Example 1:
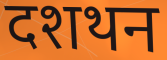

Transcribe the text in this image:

दशथन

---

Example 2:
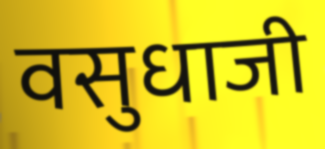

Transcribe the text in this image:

वसुधाजी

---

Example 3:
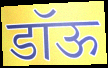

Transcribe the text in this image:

डॉऊ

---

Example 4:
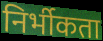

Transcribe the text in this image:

निर्भीकता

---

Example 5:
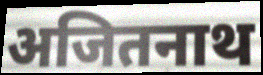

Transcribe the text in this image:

अजितनाथ